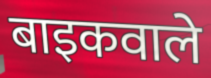
बाइकवाले